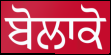
ਬੋਲਾਕੋ